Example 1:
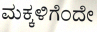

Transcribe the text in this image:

ಮಕ್ಕಳಿಗೆಂದೇ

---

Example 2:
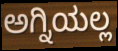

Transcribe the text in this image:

ಅಗ್ನಿಯಲ್ಲ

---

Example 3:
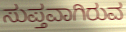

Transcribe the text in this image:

ಸುಪ್ತವಾಗಿರುವ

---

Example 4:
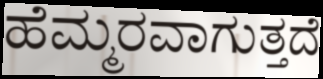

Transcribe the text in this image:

ಹೆಮ್ಮರವಾಗುತ್ತದೆ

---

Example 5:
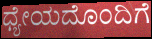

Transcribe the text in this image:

ಧ್ಯೇಯದೊಂದಿಗೆ